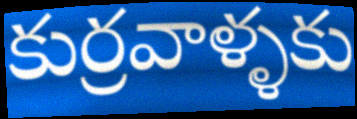
కుర్రవాళ్ళకు